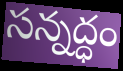
సన్నద్ధం